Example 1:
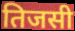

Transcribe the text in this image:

तिजसी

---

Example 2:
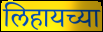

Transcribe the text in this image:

लिहायच्या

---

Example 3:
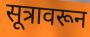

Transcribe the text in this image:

सूत्रावरून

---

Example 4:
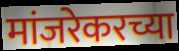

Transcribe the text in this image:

मांजरेकरच्या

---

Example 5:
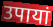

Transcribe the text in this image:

उपायां